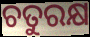
ଚତୁରକ୍ଷ